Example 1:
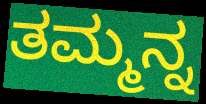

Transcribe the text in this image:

ತಮ್ಮನ್ನ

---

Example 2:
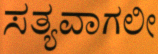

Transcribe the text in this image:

ಸತ್ಯವಾಗಲೀ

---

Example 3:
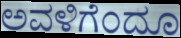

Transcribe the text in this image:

ಅವಳಿಗೆಂದೂ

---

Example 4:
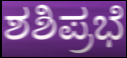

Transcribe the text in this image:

ಶಶಿಪ್ರಭೆ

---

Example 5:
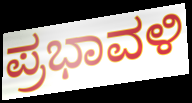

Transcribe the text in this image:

ಪ್ರಭಾವಳಿ